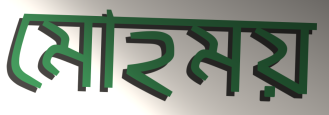
মোহময়